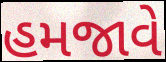
હમજાવે